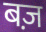
बज़